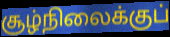
சூழ்நிலைக்குப்